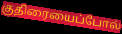
குதிரையைப்போல்